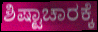
ಶಿಷ್ಟಾಚಾರಕ್ಕೆ